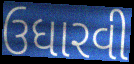
ઉધારવી